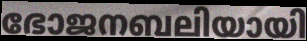
ഭോജനബലിയായി